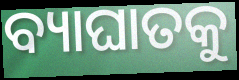
ବ୍ୟାଘାତକୁ